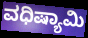
ವಧಿಷ್ಯಾಮಿ